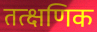
तत्क्षणिक